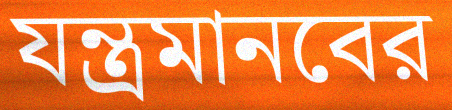
যন্ত্রমানবের